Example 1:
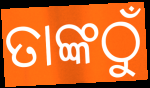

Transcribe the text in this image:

ତାଙ୍କଠୁଁ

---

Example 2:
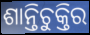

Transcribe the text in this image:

ଶାନ୍ତିଚୁକ୍ତିର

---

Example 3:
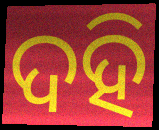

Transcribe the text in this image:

ଦହି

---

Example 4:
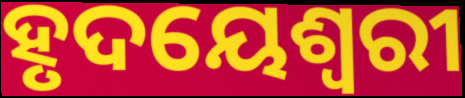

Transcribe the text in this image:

ହୃଦୟେଶ୍ୱରୀ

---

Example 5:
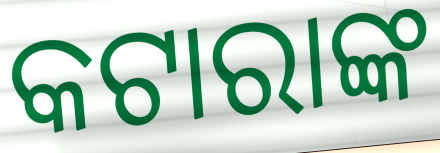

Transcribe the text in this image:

କଟାରାଙ୍କ